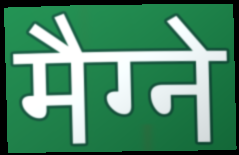
मैग्ने